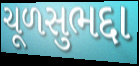
ચૂળસુભદ્દા